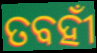
ତବହୀଁ